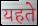
यहते